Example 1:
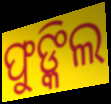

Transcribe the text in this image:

ଫୁଙ୍କିଲ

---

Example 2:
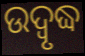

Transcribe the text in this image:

ଉଦ୍ବୃଦ୍ଧ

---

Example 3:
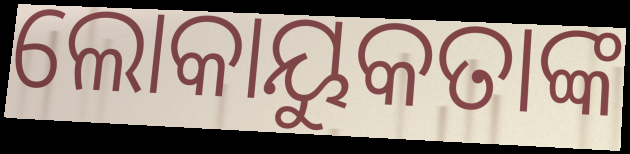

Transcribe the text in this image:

ଲୋକାୟୁକତାଙ୍କ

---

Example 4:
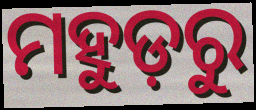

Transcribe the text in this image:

ମହୁଡ଼ରୁ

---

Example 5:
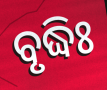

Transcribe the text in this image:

ବୃଦ୍ଧିଃ